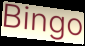
Bingo